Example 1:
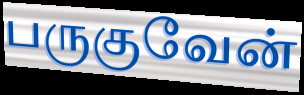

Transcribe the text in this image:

பருகுவேன்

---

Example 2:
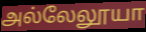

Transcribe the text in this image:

அல்லேலூயா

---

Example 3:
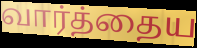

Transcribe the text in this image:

வார்த்தைய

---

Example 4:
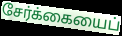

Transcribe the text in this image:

சேர்க்கையைப்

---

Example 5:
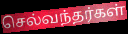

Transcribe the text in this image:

செல்வந்தர்கள்